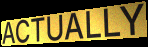
ACTUALLY